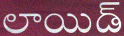
లాయిడ్